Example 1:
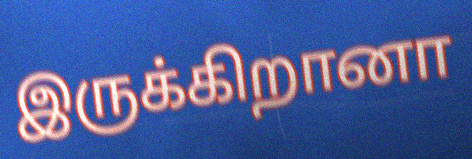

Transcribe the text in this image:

இருக்கிறானா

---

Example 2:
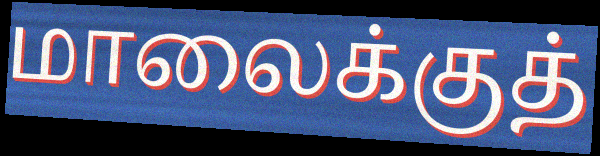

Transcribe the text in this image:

மாலைக்குத்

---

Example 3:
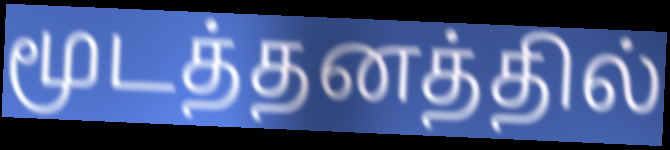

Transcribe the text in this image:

மூடத்தனத்தில்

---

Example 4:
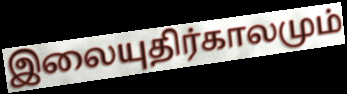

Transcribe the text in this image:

இலையுதிர்காலமும்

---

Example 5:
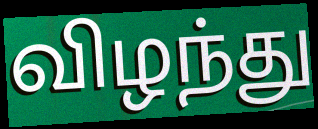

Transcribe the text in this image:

விழந்து